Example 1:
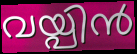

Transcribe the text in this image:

വയ്പിൻ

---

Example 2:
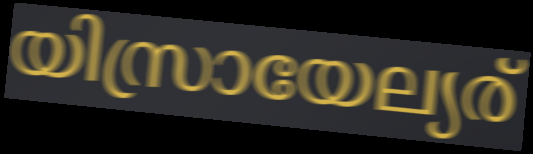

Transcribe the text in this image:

യിസ്രായേല്യര്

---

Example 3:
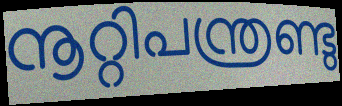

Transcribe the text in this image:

നൂറ്റിപന്ത്രണ്ടു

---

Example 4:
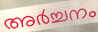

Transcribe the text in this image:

അർച്ചനം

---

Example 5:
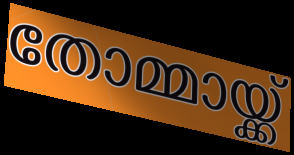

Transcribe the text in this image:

തോമ്മായ്ക്ക്